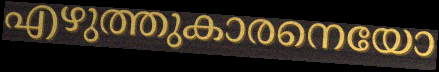
എഴുത്തുകാരനെയോ